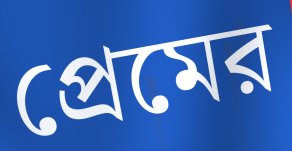
প্রেমের